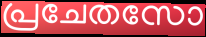
പ്രചേതസോ